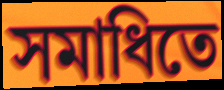
সমাধিতে